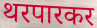
थरपारकर